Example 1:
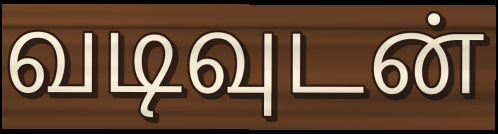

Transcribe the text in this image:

வடிவுடன்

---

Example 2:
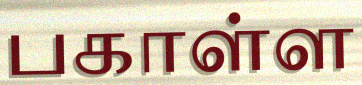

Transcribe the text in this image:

பகாள்ள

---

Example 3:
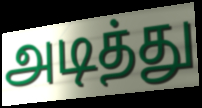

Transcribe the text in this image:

அடித்து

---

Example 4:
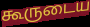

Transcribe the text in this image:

கூருடைய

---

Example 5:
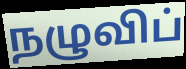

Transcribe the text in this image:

நழுவிப்